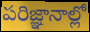
పరిజ్ఞానాల్లో